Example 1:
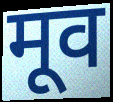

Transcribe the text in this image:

मूव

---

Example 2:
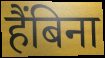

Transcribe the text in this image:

हैंबिना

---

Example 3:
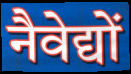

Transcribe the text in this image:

नैवेद्यों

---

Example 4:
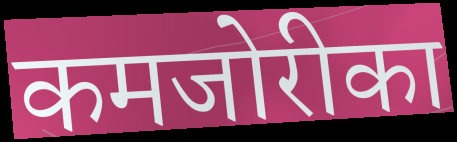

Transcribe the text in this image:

कमजोरीका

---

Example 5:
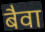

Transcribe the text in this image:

बैवा